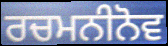
ਰਚਮਨੀਨੋਵ